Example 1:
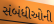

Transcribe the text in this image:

સંબંધીઓની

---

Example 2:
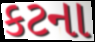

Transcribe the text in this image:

કટના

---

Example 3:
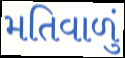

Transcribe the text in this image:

મતિવાળું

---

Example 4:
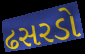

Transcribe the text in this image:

ઢસરડો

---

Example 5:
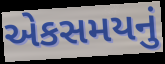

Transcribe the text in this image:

એકસમયનું